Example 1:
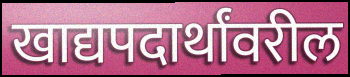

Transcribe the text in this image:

खाद्यपदार्थांवरील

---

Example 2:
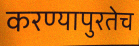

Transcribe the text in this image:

करण्यापुरतेच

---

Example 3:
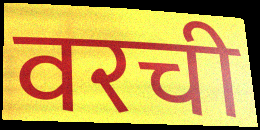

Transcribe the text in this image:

वरची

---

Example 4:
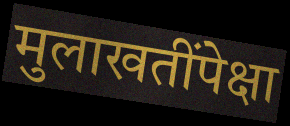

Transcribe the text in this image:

मुलाखतींपेक्षा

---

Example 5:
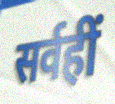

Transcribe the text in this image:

सर्वहीं